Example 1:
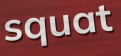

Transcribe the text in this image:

squat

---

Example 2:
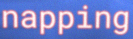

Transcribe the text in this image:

napping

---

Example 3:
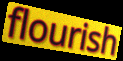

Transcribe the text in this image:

flourish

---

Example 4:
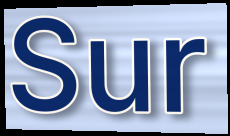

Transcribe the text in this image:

Sur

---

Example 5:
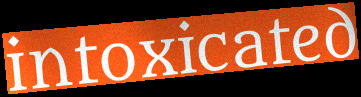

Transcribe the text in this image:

intoxicated